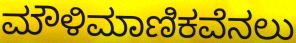
ಮೌಳಿಮಾಣಿಕವೆನಲು